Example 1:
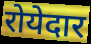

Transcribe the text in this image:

रोयेदार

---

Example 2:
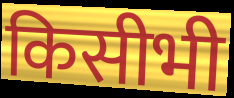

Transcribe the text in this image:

किसीभी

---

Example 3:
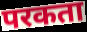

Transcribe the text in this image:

परकता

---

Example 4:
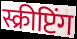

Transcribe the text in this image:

स्क्रीप्टिंग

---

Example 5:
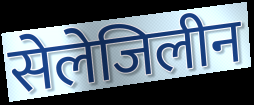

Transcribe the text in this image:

सेलेजिलीन